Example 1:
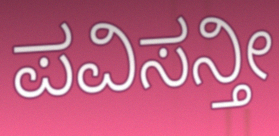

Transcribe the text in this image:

ಪವಿಸನ್ತೀ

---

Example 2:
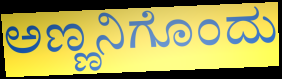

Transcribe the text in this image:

ಅಣ್ಣನಿಗೊಂದು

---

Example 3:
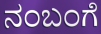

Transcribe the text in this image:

ನಂಬಂಗೆ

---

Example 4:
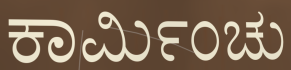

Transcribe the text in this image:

ಕಾರ್ಮಿಂಚು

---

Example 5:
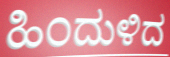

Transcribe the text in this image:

ಹಿಂದುಳಿದ